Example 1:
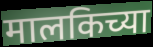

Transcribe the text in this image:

मालकिच्या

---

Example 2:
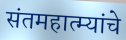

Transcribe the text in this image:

संतमहात्म्यांचे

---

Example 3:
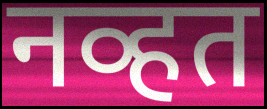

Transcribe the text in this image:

नव्हत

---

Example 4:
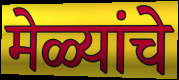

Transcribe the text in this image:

मेळ्यांचे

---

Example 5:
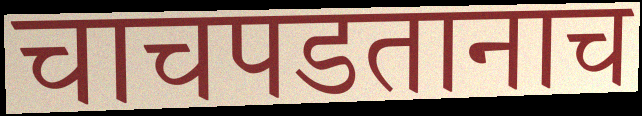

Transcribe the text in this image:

चाचपडतानाच